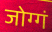
जोग्गं